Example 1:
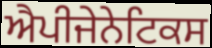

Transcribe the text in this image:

ਐਪੀਜੇਨੇਟਿਕਸ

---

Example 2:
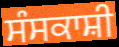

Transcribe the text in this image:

ਸੰਸਕਾਸ਼ੀ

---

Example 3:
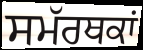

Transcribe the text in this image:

ਸਮੱਰਥਕਾਂ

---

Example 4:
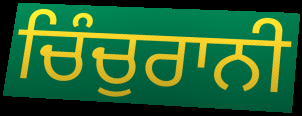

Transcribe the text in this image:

ਚਿੰਚੁਰਾਨੀ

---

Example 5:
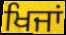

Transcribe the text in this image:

ਖਿਜਾਂ